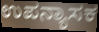
ಉಪನ್ಯಾಸಕ